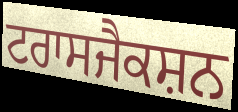
ਟਰਾਸਜੈਕਸ਼ਨ